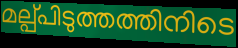
മല്പ്പിടുത്തത്തിനിടെ